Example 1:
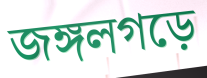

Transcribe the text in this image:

জঙ্গলগড়ে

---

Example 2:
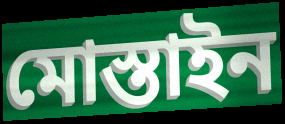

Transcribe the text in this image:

মোস্তাইন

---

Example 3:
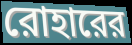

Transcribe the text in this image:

রোহারের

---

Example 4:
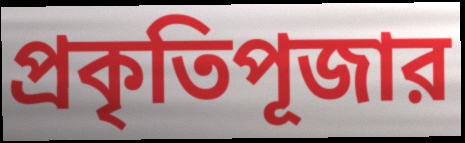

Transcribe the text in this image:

প্রকৃতিপূজার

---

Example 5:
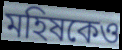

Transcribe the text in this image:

মহিষকেও